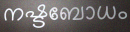
നഷ്ടബോധം